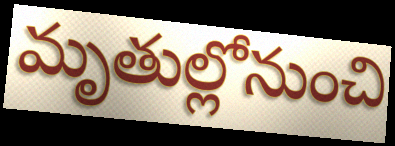
మృతుల్లోనుంచి